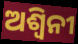
ଅଶ୍ୱିନୀ